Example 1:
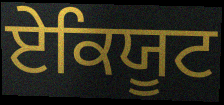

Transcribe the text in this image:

ਏਕਿਯੂਟ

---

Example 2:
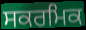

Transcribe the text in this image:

ਸਕਰਮਿਕ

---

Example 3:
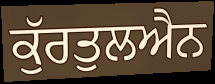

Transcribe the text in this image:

ਕੁੱਰਤੁਲਐਨ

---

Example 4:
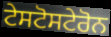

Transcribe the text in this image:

ਟੇਸਟੋਸਟੇਰੋਨ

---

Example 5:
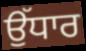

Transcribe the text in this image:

ਉੱਧਾਰ